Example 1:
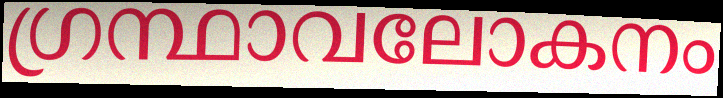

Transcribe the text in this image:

ഗ്രന്ഥാവലോകനം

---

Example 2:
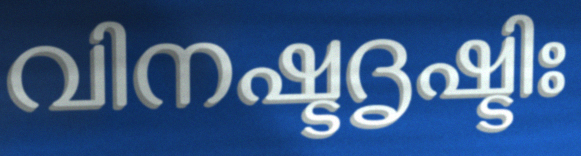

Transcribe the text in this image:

വിനഷ്ടദൃഷ്ടിഃ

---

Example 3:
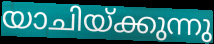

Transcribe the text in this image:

യാചിയ്ക്കുന്നു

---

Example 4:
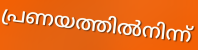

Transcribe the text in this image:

പ്രണയത്തിൽനിന്ന്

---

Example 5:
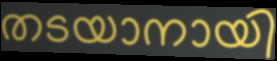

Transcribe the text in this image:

തടയാനായി